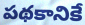
పథకానికే